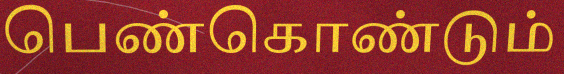
பெண்கொண்டும்